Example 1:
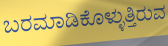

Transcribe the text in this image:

ಬರಮಾಡಿಕೊಳ್ಳುತ್ತಿರುವ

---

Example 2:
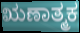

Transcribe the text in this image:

ಋಣಾತ್ಮಕ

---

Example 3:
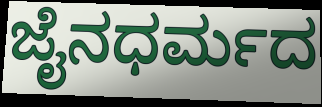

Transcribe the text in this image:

ಜೈನಧರ್ಮದ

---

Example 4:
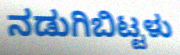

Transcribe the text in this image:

ನಡುಗಿಬಿಟ್ಟಳು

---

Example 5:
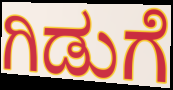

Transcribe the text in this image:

ಗಿಡುಗೆ